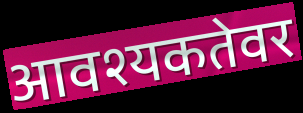
आवश्यकतेवर